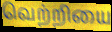
வெற்றியை